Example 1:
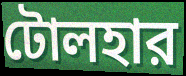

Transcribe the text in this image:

টোলহার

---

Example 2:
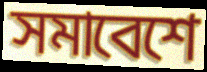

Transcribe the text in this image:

সমাবেশে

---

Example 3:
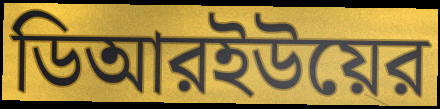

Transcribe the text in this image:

ডিআরইউয়ের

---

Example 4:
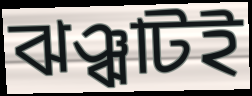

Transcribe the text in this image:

ঝঞ্ঝাটই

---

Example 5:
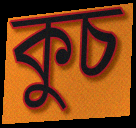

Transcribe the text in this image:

কুচ